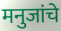
मनुजांचे